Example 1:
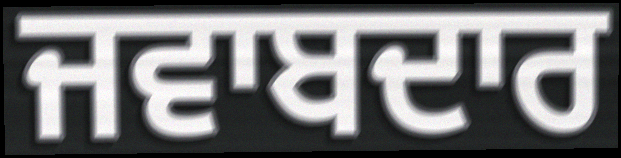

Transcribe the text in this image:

ਜਵਾਬਦਾਰ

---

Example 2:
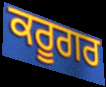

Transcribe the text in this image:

ਕਰੂਗਰ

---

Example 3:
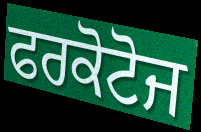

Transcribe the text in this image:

ਫਰਕੋਟੋਜ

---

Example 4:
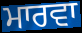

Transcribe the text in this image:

ਮਾਰਵਾ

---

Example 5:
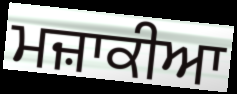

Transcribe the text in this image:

ਮਜ਼ਾਕੀਆ